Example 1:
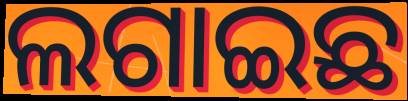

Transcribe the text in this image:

ଲଗାଇଛ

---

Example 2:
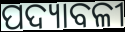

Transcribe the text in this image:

ପଦ୍ୟାବଳୀ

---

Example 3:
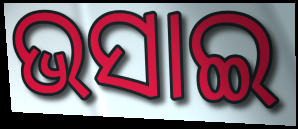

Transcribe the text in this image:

ଭସାଇ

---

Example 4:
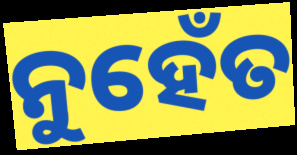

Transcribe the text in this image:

ନୁହେଁତ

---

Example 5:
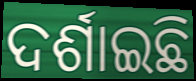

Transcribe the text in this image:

ଦର୍ଶାଇଛି